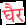
घैर